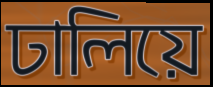
ঢালিয়ে